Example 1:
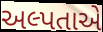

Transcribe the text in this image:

અલ્પતાએ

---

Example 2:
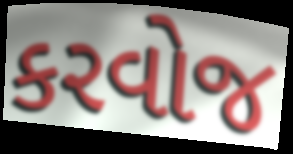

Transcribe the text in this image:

કરવોજ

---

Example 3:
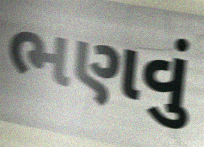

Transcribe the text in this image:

ભણવું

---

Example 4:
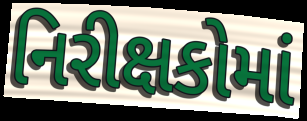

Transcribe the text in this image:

નિરીક્ષકોમાં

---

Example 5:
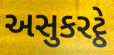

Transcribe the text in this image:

અસુકરટ્ઠે